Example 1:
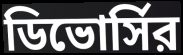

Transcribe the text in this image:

ডিভোর্সির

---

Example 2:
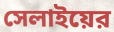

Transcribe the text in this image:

সেলাইয়ের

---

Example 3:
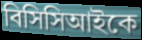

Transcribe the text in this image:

বিসিসিআইকে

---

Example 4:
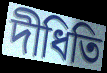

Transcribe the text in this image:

দীধিতি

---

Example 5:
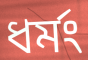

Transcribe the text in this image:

ধর্মং